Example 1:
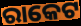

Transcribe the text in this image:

ରାକେଟ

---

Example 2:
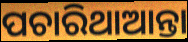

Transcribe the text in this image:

ପଚାରିଥାଆନ୍ତା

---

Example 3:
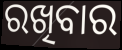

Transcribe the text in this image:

ରଖିବାର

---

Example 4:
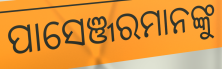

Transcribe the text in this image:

ପାସେଞ୍ଜରମାନଙ୍କୁ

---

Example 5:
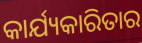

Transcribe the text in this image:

କାର୍ଯ୍ୟକାରିତାର